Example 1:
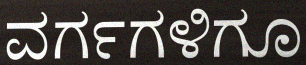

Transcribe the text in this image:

ವರ್ಗಗಳಿಗೂ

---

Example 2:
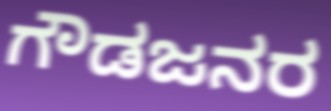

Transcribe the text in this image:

ಗೌಡಜನರ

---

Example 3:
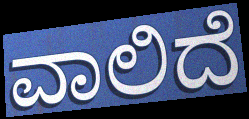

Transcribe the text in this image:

ವಾಲಿದೆ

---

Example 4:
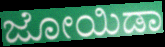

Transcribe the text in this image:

ಜೋಯಿಡಾ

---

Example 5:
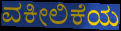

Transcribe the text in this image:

ವಕೀಲಿಕೆಯ